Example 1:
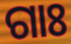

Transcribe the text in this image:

ଗାଃ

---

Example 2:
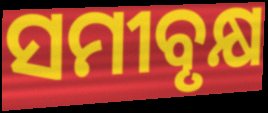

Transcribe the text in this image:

ସମୀବୃକ୍ଷ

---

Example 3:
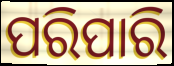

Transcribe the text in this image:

ପରିପାରି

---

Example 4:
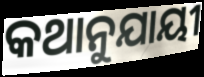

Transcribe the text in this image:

କଥାନୁଯାୟୀ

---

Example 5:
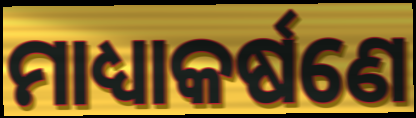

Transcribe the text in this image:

ମାଧ୍ୟାକର୍ଷଣେ